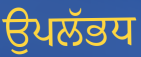
ਉਪਲੱਭਧ